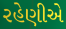
રહેણીએ